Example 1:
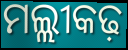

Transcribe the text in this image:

ମଲ୍ଲୀକଢ଼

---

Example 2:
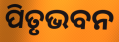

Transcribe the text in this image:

ପିତୃଭବନ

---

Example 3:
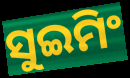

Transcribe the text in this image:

ସୁଇମିଂ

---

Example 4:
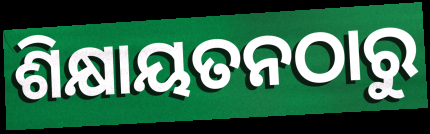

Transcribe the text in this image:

ଶିକ୍ଷାୟତନଠାରୁ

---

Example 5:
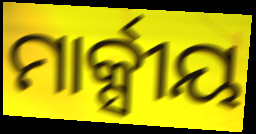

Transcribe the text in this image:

ମାର୍କ୍ସୀୟ